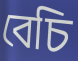
বেচি